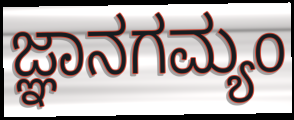
ಜ್ಞಾನಗಮ್ಯಂ